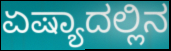
ಏಷ್ಯಾದಲ್ಲಿನ